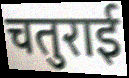
चतुराई